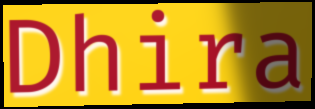
Dhira